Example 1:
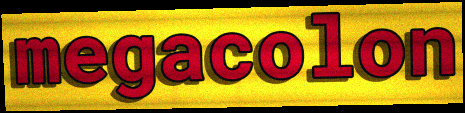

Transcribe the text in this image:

megacolon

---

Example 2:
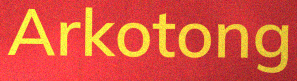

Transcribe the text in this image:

Arkotong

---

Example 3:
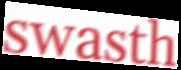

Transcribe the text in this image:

swasth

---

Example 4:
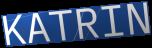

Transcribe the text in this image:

KATRIN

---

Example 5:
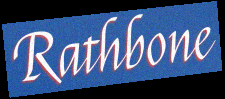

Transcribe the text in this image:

Rathbone